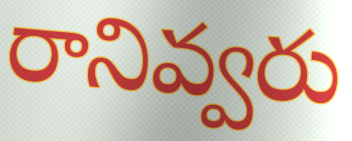
రానివ్వరు